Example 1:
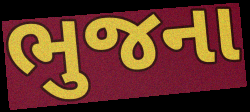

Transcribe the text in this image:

ભુજના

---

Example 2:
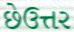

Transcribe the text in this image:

છેઉત્તર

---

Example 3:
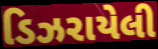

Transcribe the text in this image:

ડિઝરાયેલી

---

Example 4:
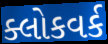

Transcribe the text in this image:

ક્લોકવર્ક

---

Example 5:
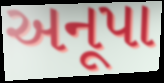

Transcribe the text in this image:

અનૂપા